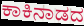
ಕಾಕಿನಾಡದ